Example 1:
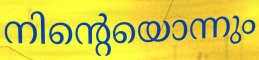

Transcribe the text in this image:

നിന്റെയൊന്നും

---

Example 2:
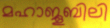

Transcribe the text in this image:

മഹാജൂബിലി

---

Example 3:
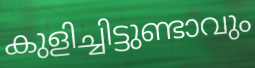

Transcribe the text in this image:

കുളിച്ചിട്ടുണ്ടാവും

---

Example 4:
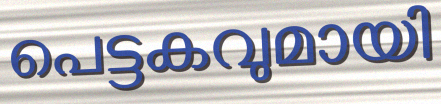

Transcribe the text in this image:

പെട്ടകവുമായി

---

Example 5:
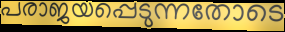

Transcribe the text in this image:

പരാജയപ്പെടുന്നതോടെ